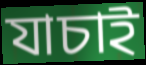
যাচাই